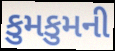
કુમકુમની